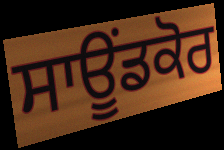
ਸਾਊਂਡਕੋਰ